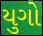
યુગો